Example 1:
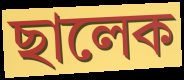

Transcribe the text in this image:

ছালেক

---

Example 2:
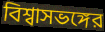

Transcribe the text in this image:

বিশ্বাসভঙ্গের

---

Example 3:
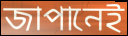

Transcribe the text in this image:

জাপানেই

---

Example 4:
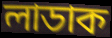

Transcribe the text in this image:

লাডাক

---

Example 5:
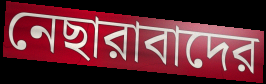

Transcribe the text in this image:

নেছারাবাদের